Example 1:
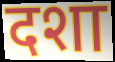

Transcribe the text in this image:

दशा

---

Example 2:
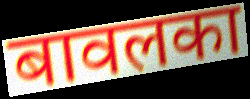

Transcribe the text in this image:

बावलका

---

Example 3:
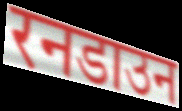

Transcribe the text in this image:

रनडाउन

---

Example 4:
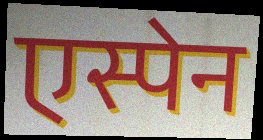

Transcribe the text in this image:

एस्पेन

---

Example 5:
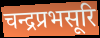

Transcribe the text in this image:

चन्द्रप्रभसूरि